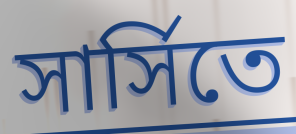
সার্সিতে